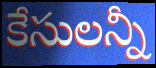
కేసులన్నీ